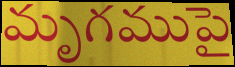
మృగముపై